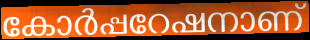
കോർപ്പറേഷനാണ്